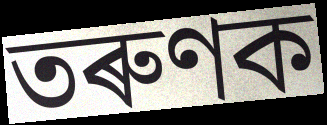
তৰুণক